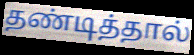
தண்டித்தால்